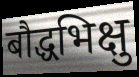
बौद्धभिक्षु